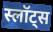
स्लॉट्स